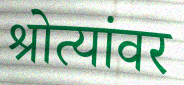
श्रोत्यांवर